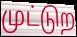
முட்டுற